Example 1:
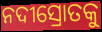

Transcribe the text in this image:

ନଦୀସ୍ରୋତକୁ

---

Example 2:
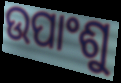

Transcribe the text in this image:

ଉପାଂଶୁ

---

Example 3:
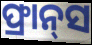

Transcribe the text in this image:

ଫ୍ରାନ୍‍ସ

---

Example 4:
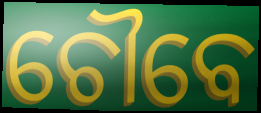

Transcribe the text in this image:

ଚୌବେ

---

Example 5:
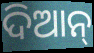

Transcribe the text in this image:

ଦିଆନ୍